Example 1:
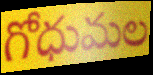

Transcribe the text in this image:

గోధుమల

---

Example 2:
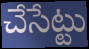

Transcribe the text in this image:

చేసేట్టు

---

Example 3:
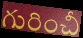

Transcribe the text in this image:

గురించీ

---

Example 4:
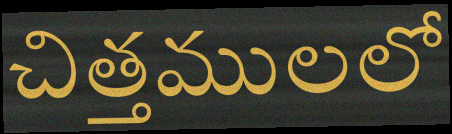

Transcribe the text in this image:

చిత్తములలో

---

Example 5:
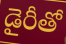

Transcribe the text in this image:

డైరీతో